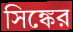
সিঙ্কের